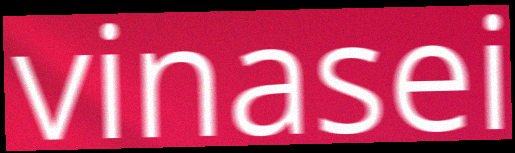
vinasei